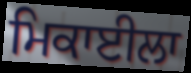
ਮਿਕਾਈਲਾ